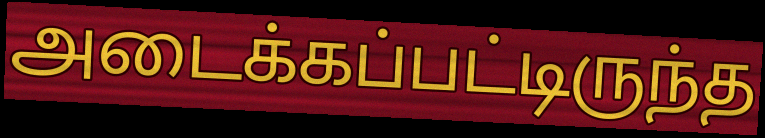
அடைக்கப்பட்டிருந்த